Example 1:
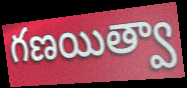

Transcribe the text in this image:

గణయిత్వా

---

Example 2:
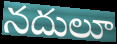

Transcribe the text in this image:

నదులూ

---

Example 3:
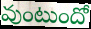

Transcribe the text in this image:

వుంటుందో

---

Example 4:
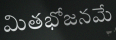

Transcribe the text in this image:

మితభోజనమే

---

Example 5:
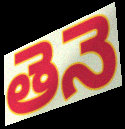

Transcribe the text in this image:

తెనె